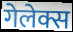
गेलेक्स